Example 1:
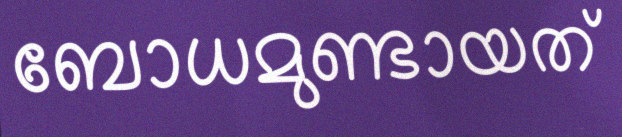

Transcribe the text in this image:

ബോധമുണ്ടായത്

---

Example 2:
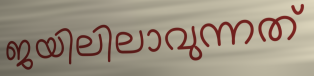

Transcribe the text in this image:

ജയിലിലാവുന്നത്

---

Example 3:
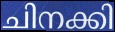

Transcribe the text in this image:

ചിനക്കി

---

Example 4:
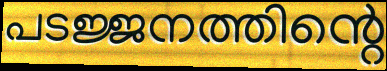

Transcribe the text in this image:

പടജ്ജനത്തിന്റെ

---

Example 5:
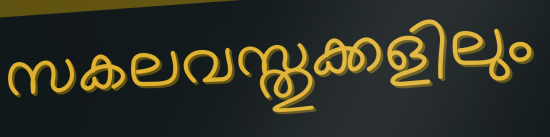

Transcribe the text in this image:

സകലവസ്തുക്കളിലും